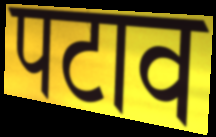
पटाव